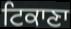
ਟਿਕਾਣਾ